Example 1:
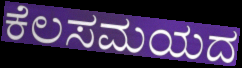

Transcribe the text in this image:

ಕೆಲಸಮಯದ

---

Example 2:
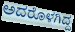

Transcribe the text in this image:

ಅದರೊಳಗಿದ್ದ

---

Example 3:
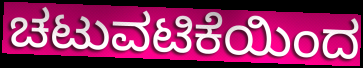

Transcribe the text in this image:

ಚಟುವಟಿಕೆಯಿಂದ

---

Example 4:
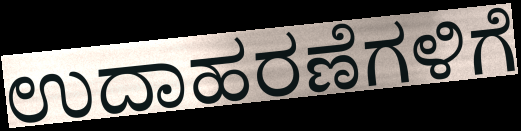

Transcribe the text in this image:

ಉದಾಹರಣೆಗಳಿಗೆ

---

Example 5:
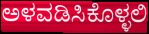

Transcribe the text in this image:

ಅಳವಡಿಸಿಕೊಳ್ಳಲಿ